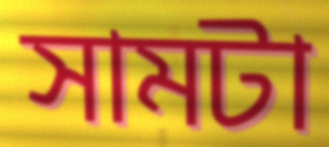
সামটা